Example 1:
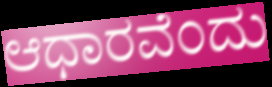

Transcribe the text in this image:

ಆಧಾರವೆಂದು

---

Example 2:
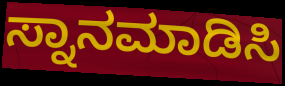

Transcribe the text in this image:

ಸ್ನಾನಮಾಡಿಸಿ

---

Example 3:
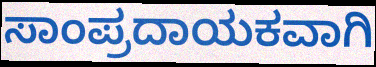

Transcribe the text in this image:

ಸಾಂಪ್ರದಾಯಕವಾಗಿ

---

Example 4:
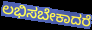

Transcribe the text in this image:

ಲಭಿಸಬೇಕಾದರೆ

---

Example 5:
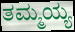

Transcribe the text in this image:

ತಮ್ಮಯ್ಯ